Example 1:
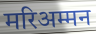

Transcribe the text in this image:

मरिअम्मन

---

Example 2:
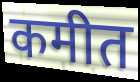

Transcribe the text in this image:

कमीत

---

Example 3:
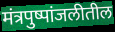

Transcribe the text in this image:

मंत्रपुष्पांजलीतील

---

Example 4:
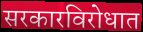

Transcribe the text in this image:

सरकारविरोधात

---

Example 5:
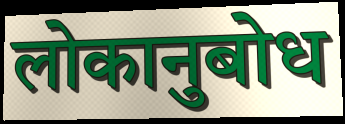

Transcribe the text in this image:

लोकानुबोध